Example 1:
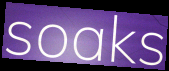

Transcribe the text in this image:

soaks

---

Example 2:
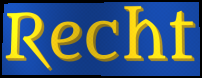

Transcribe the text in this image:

Recht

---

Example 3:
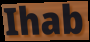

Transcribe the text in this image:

Ihab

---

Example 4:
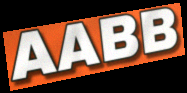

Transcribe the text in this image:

AABB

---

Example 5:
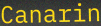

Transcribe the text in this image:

Canarin